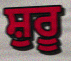
ਸ਼ੁਰੂ